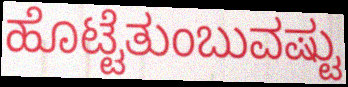
ಹೊಟ್ಟೆತುಂಬುವಷ್ಟು